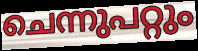
ചെന്നുപറ്റും